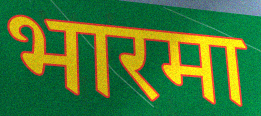
भारमा